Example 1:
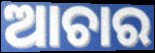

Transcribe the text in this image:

ଆଚାର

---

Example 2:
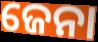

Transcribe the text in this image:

ଜେନା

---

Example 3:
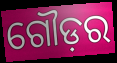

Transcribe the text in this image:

ଗୌଡ଼ର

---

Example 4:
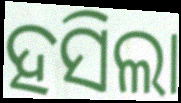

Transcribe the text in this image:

ହସିଲା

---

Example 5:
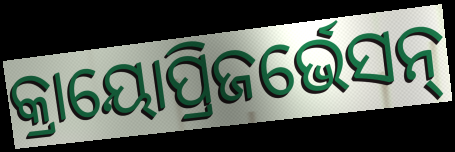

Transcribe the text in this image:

କ୍ରାୟୋପ୍ରିଜର୍ଭେସନ୍